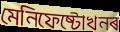
মেনিফেষ্টোখনৰ